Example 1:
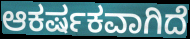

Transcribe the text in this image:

ಆಕರ್ಷಕವಾಗಿದೆ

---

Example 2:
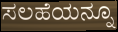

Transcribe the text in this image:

ಸಲಹೆಯನ್ನೂ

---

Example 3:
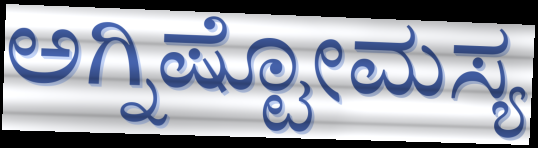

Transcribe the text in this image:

ಅಗ್ನಿಷ್ಟೋಮಸ್ಯ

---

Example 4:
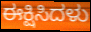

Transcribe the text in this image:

ಈಕ್ಷಿಸಿದಳು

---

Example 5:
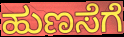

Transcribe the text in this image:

ಹುಣಸೆಗೆ